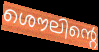
ശൌലിന്റെ